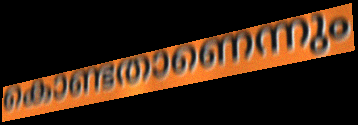
കൊണ്ടതാണെന്നും